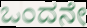
ಒಂದನೇ